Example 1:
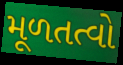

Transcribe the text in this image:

મૂળતત્વો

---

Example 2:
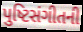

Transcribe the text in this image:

પુષ્ટિસંગીતની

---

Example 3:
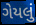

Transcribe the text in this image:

ગેયલું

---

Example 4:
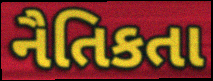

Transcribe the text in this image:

નૈતિકતા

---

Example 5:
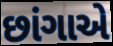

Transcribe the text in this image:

છાંગાએ